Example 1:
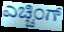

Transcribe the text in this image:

ಎಚ್ಚಿಂಗ್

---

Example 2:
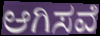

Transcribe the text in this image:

ಆಗಿಸವೆ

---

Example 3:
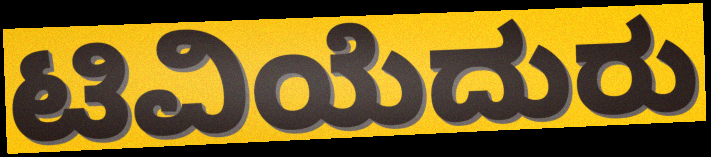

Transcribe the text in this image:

ಟಿವಿಯೆದುರು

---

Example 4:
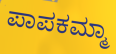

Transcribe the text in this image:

ಪಾಪಕಮ್ಮಾ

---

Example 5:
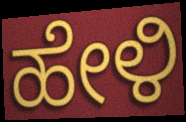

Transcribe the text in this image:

ಹೇಳಿ